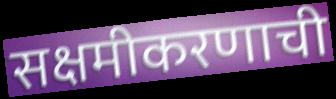
सक्षमीकरणाची